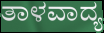
ತಾಳವಾದ್ಯ